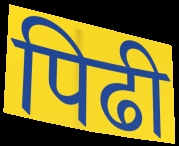
पिढी